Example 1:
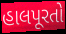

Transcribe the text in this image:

હાલપૂરતો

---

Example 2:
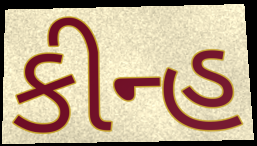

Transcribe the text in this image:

કીન્હ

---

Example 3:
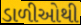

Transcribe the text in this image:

ડાળીઓથી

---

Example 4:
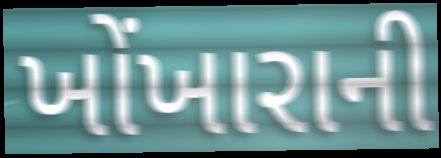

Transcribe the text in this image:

ખોંખારાની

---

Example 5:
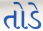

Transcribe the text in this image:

તોડે